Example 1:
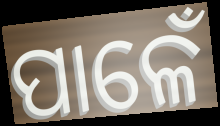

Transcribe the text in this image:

ପାଳେଁ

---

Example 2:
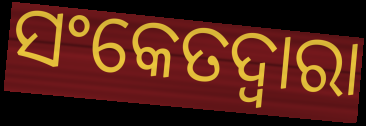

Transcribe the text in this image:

ସଂକେତଦ୍ୱାରା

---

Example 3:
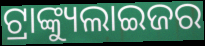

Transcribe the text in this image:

ଟ୍ରାଙ୍କ୍ୟୁଲାଇଜର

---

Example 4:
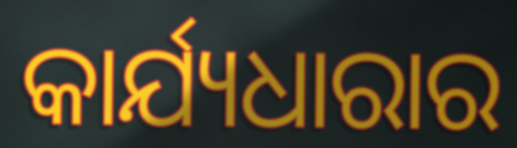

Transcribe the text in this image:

କାର୍ଯ୍ୟଧାରାର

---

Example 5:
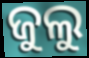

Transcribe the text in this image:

ଜୁଲୁ